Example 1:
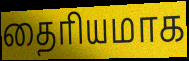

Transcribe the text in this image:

தைரியமாக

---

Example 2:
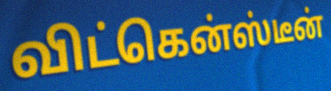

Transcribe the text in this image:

விட்கென்ஸ்டீன்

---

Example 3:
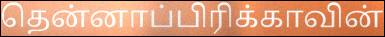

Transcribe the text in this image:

தென்னாப்பிரிக்காவின்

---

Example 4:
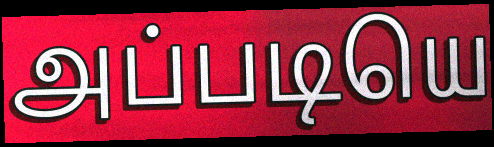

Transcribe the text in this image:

அப்படியெ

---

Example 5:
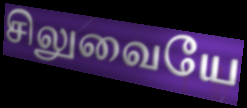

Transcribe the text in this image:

சிலுவையே